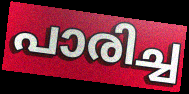
പാരിച്ച